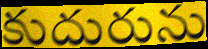
కుదురును